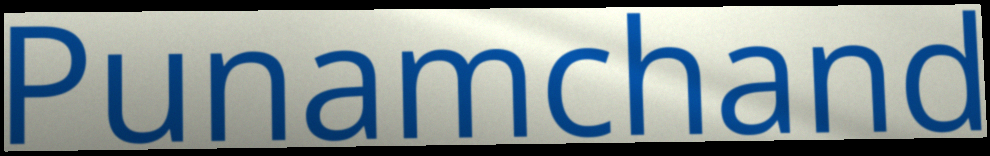
Punamchand